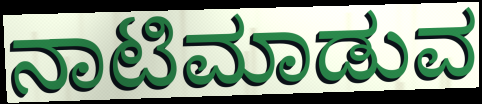
ನಾಟಿಮಾಡುವ